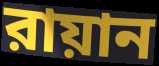
রায়ান